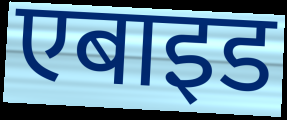
एबाइड